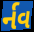
ર્નવ